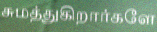
சுமத்துகிறார்களே